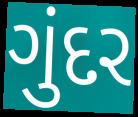
ગુંદર